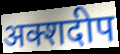
अक्शदीप